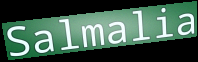
Salmalia